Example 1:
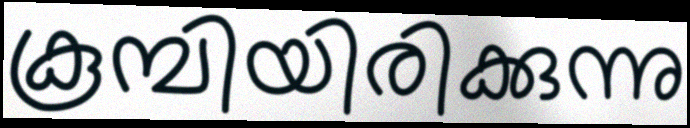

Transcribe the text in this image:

കൂമ്പിയിരിക്കുന്നു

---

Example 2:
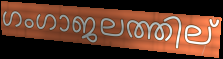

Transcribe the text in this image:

ഗംഗാജലത്തില്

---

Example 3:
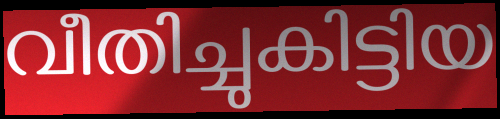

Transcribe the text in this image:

വീതിച്ചുകിട്ടിയ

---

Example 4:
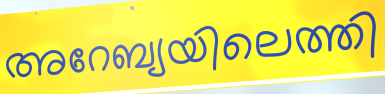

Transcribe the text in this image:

അറേബ്യയിലെത്തി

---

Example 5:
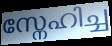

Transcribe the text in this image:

സ്നേഹിച്ച